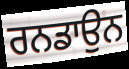
ਰਨਡਾਉਨ